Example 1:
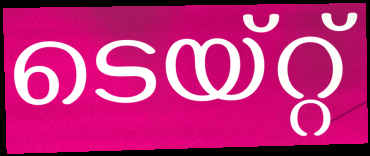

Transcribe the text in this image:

ടെയ്റ്റ്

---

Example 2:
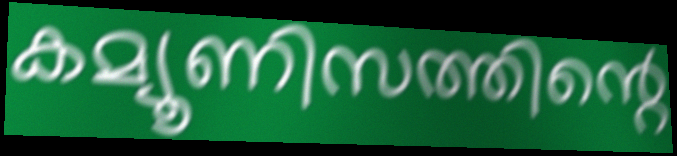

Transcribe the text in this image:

കമ്യൂണിസത്തിന്റെ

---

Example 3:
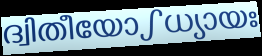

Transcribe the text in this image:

ദ്വിതീയോഽധ്യായഃ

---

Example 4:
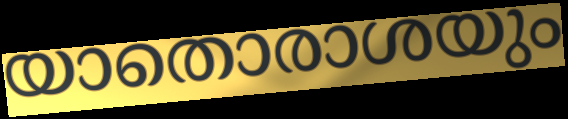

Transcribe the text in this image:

യാതൊരാശയും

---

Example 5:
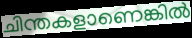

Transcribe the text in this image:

ചിന്തകളാണെങ്കിൽ